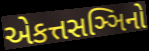
એકત્તસઞ્ઞિનો